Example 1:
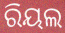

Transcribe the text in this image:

ରିୟଲ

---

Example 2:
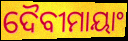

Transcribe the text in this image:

ଦୈବୀମାୟାଂ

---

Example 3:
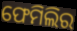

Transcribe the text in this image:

ଫେମିଲିର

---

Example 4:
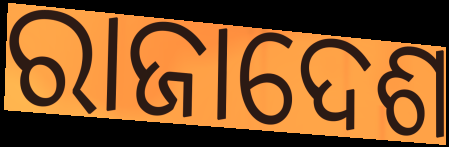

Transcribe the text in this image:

ରାଜାଦେଶ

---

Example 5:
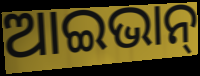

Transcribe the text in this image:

ଆଇଭାନ୍